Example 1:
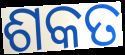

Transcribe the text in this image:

ଶକତ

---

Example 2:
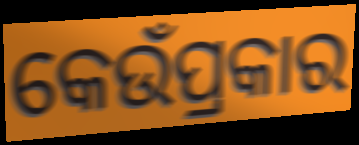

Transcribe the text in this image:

କେଉଁପ୍ରକାର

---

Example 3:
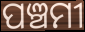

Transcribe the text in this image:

ପଞ୍ଚମୀ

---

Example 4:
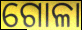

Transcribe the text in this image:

ଗୋଳା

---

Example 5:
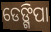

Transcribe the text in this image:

ଡେଙ୍ଗିପା